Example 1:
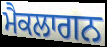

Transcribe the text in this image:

ਮੈਕਲਾਗਨ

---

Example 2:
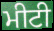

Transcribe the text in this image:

ਮੀਟੀ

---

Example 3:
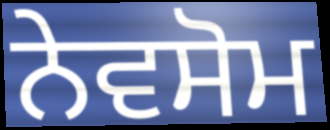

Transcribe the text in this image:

ਨੇਵਸੋਮ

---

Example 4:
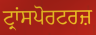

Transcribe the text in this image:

ਟ੍ਰਾਂਸਪੋਰਟਰਜ਼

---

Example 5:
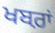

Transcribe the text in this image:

ਖਬ਼ਰਾਂ